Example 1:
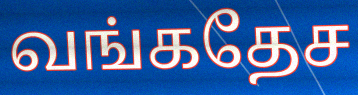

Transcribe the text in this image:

வங்கதேச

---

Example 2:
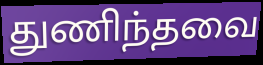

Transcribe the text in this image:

துணிந்தவை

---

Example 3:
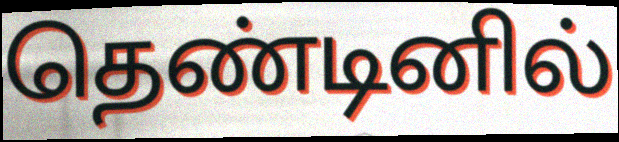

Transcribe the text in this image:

தெண்டினில்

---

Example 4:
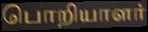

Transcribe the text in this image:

பொறியாளர்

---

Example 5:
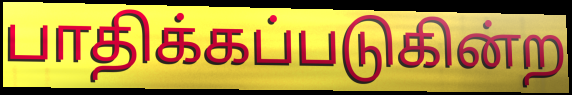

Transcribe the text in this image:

பாதிக்கப்படுகின்ற